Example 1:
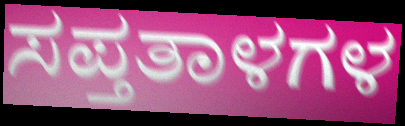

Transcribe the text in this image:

ಸಪ್ತತಾಳಗಳ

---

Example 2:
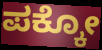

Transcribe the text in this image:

ಪಕ್ಕೋ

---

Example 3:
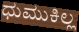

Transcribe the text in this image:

ಧುಮುಕಿಲ್ಲ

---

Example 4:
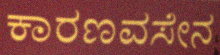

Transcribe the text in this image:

ಕಾರಣವಸೇನ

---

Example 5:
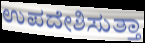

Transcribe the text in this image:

ಉಪದೇಶಿಸುತ್ತಾ